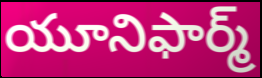
యూనిఫార్మ్